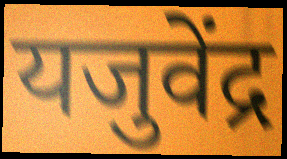
यजुवेंद्र